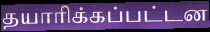
தயாரிக்கப்பட்டன